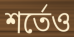
শর্তেও